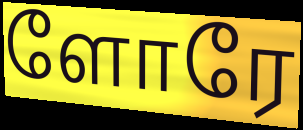
ளோரே